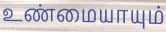
உண்மையாயும்